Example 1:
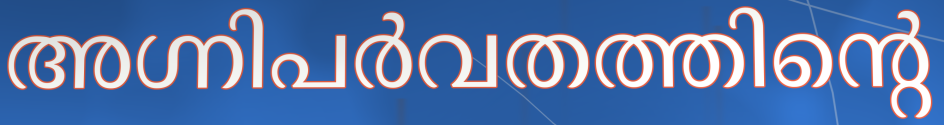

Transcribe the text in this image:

അഗ്നിപർവതത്തിന്റെ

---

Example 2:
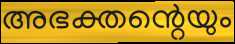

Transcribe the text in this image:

അഭക്തന്റെയും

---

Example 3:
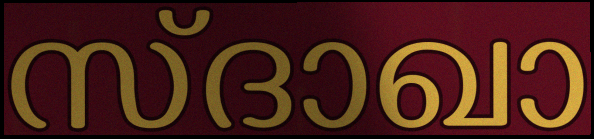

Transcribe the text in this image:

സ്ദാഖാ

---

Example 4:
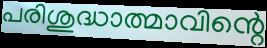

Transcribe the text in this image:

പരിശുദ്ധാത്മാവിന്റെ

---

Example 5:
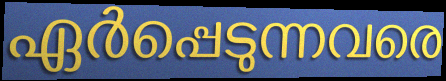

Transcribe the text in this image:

ഏർപ്പെടുന്നവരെ